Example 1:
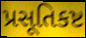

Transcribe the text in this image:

પ્રસૂતિકષ્ટ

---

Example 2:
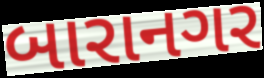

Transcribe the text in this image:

બારાનગર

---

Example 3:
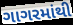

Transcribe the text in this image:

ગાગરમાંથી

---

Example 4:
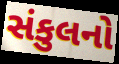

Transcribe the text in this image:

સંકુલનો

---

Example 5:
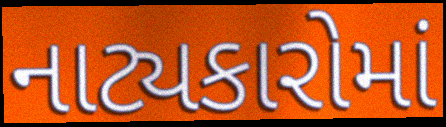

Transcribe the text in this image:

નાટ્યકારોમાં